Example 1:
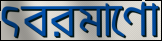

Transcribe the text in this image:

ৎবরমাণো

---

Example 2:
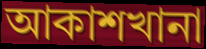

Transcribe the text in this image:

আকাশখানা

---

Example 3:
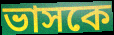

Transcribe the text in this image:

ভাসকে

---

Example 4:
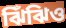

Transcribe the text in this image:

ঝিঁঝিও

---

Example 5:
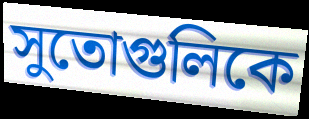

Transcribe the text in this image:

সুতোগুলিকে